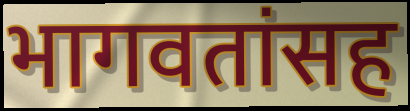
भागवतांसह